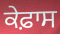
ਕੇਫ਼ਾਸ